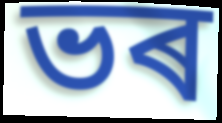
ভৰ